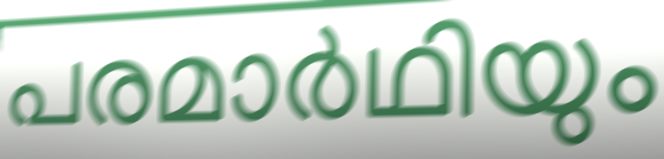
പരമാർഥിയും